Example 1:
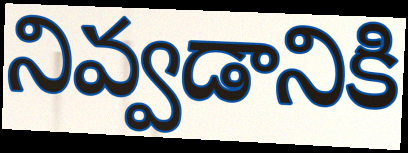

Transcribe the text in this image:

నివ్వడానికి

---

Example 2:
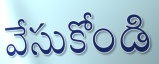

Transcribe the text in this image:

వేసుకోండి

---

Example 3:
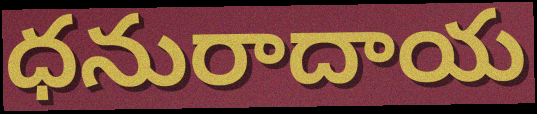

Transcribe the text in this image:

ధనురాదాయ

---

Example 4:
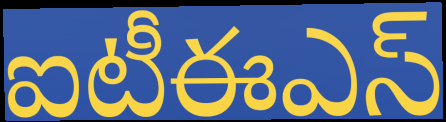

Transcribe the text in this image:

ఐటీఈఎస్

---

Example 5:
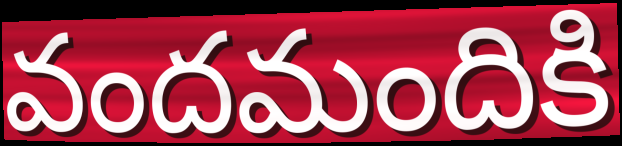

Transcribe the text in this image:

వందమందికి